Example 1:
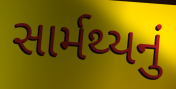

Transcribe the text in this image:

સાર્મથ્યનું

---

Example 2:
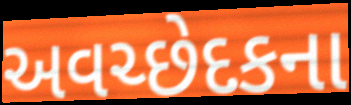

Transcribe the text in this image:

અવચ્છેદકના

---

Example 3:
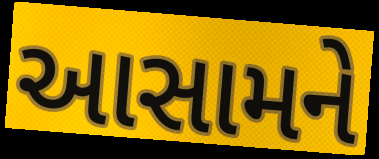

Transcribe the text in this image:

આસામને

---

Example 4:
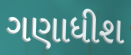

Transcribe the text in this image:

ગણાધીશ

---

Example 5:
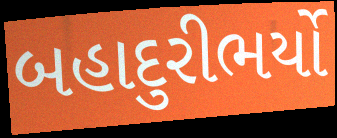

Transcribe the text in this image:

બહાદુરીભર્યો